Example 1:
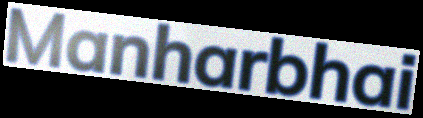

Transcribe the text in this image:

Manharbhai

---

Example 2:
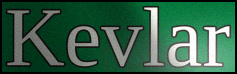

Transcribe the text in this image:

Kevlar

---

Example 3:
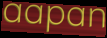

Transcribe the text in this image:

aapan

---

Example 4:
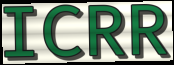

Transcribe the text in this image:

ICRR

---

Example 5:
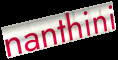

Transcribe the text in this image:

nanthini